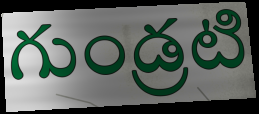
గుండ్రటి